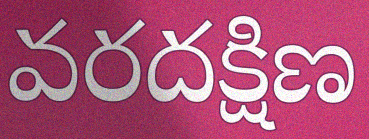
వరదక్షిణ